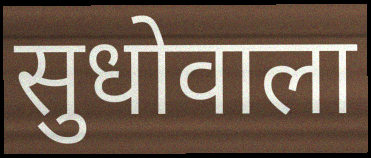
सुधोवाला